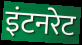
इंटनरेट